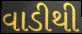
વાડીથી